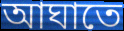
আঘাতে